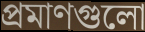
প্রমাণগুলো